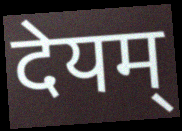
देयम्